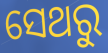
ସେଥରୁ